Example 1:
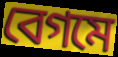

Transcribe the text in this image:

বেগমে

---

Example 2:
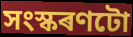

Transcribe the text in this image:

সংস্কৰণটো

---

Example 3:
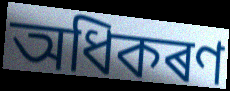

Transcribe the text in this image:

অধিকৰণ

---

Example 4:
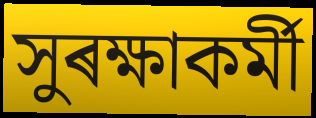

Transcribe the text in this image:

সুৰক্ষাকৰ্মী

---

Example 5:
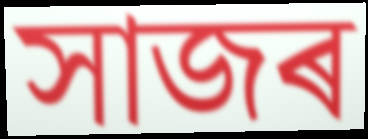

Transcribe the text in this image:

সাজৰ